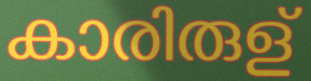
കാരിരുള്